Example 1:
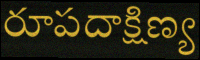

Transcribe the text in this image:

రూపదాక్షిణ్య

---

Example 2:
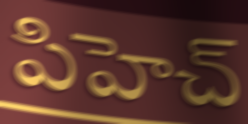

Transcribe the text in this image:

పిహెచ్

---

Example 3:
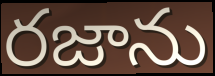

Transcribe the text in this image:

రజాను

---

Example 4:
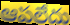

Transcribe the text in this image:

ఆపలేదు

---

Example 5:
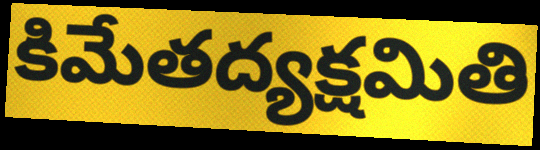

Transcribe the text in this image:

కిమేతద్యక్షమితి